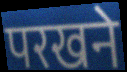
परखने